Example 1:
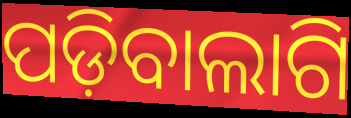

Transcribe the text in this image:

ପଡ଼ିବାଲାଗି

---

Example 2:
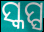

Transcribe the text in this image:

ସ୍କପ୍ସ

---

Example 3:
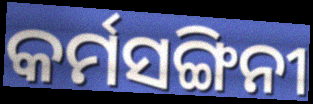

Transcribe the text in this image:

କର୍ମସଙ୍ଗିନୀ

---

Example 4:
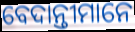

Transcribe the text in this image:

ବେଦାନ୍ତୀମାନେ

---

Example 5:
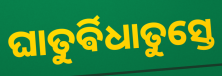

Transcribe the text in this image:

ଘାତୁର୍ଵିଧାତୁସ୍ତେ